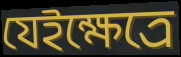
যেইক্ষেত্রে